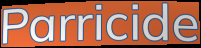
Parricide